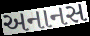
અનાનસ